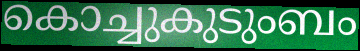
കൊച്ചുകുടുംബം